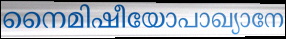
നൈമിഷീയോപാഖ്യാനേ